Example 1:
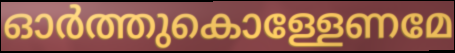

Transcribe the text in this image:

ഓർത്തുകൊള്ളേണമേ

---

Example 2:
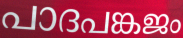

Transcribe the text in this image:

പാദപങ്കജം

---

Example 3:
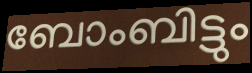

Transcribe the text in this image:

ബോംബിട്ടും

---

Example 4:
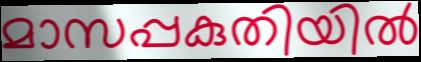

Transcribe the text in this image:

മാസപ്പകുതിയിൽ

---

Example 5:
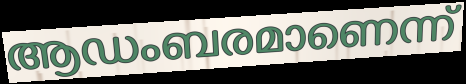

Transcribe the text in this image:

ആഡംബരമാണെന്ന്